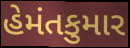
હેમંતકુમાર